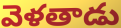
వెళతాడు